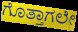
ಗೊತ್ತಾಗಲೇ